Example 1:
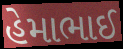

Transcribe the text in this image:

હેમાભાઈ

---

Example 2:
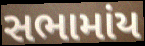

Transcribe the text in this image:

સભામાંય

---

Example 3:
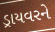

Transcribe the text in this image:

ડ્રાયવરને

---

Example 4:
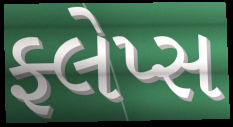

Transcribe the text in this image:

ફ્લેપ્સ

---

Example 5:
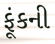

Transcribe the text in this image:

ફૂંકની